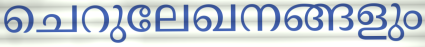
ചെറുലേഖനങ്ങളും